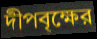
দীপবৃক্ষের